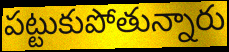
పట్టుకుపోతున్నారు